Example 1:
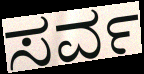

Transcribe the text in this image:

ಸರ್ವ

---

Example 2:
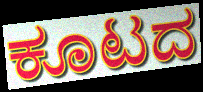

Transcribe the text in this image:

ಕೂಟದ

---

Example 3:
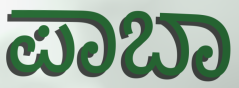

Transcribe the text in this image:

ಪಾಬಾ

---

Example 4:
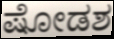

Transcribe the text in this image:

ಷೋಡಶ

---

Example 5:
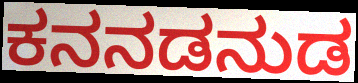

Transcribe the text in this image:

ಕನನಡನುಡ